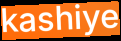
kashiye